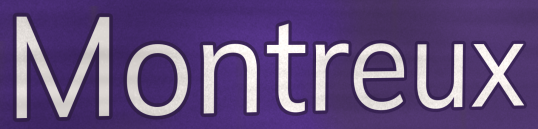
Montreux